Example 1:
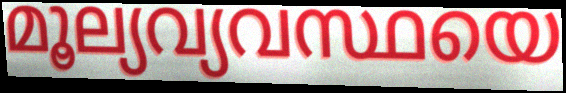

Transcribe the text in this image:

മൂല്യവ്യവസ്ഥയെ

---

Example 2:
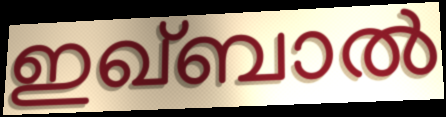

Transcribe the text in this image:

ഇഖ്ബാൽ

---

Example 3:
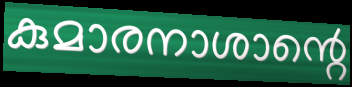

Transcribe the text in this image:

കുമാരനാശാന്റെ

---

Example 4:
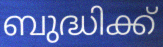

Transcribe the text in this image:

ബുദ്ധിക്ക്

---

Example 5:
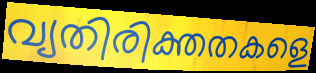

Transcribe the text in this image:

വ്യതിരിക്തതകളെ